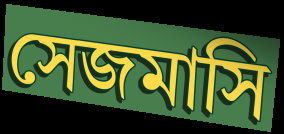
সেজমাসি